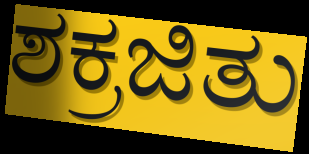
ಶಕ್ರಜಿತು